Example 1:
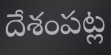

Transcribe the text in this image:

దేశంపట్ల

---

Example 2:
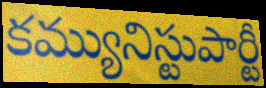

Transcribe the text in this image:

కమ్యునిస్టుపార్టీ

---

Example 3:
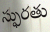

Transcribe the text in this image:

స్ఫురతు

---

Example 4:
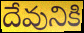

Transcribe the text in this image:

దేవునికి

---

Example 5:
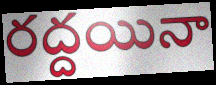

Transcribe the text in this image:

రద్దయినా